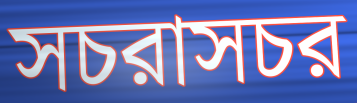
সচরাসচর